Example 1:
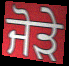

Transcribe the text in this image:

ਜੋੜੇ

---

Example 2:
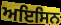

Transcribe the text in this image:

ਅਇਸਿਨ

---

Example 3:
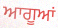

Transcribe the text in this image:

ਆਗੂਆਂ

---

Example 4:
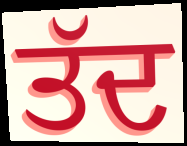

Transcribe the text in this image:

ਤੱਦ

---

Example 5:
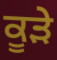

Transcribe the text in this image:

ਕੂਡ਼ੇ